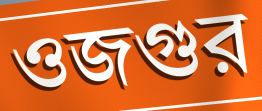
ওজগুর